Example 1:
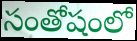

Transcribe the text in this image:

సంతోషంలో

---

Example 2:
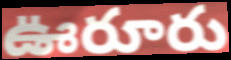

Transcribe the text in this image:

ఊరూరు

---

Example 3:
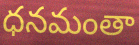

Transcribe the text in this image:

ధనమంతా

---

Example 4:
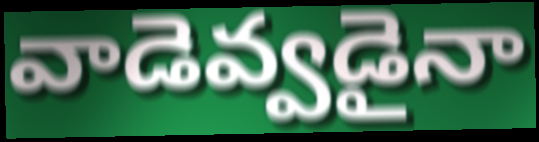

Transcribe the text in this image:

వాడెవ్వడైనా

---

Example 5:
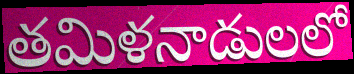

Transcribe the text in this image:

తమిళనాడులలో